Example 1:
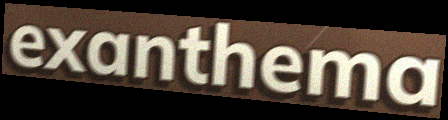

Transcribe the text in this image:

exanthema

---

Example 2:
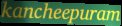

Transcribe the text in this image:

kancheepuram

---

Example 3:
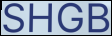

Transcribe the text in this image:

SHGB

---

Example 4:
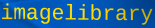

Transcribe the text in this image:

imagelibrary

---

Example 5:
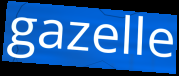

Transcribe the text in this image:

gazelle